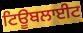
ਟਿਊਬਲਾਈਟ